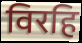
विरहि